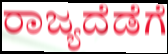
ರಾಜ್ಯದೆಡೆಗೆ